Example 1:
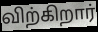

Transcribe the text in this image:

விற்கிறார்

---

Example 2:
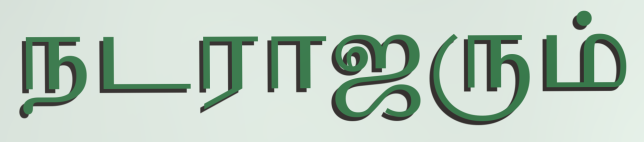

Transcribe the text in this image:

நடராஜரும்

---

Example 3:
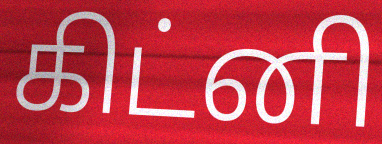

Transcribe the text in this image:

கிட்னி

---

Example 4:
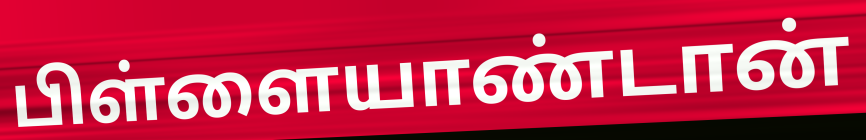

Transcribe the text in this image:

பிள்ளையாண்டான்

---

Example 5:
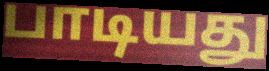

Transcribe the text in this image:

பாடியது